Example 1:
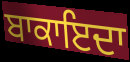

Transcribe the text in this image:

ਬਾਕਾਇਦਾ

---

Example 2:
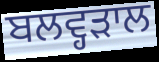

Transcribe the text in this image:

ਬਲਵ੍ਹੜਾਲ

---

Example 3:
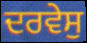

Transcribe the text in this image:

ਦਰਵੇਸੁ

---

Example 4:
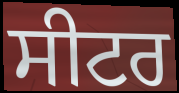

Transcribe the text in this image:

ਸੀਟਰ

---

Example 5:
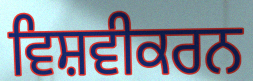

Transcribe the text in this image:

ਵਿਸ਼ਵੀਕਰਨ